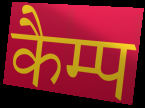
कैम्प